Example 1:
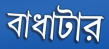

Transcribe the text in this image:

বাধাটার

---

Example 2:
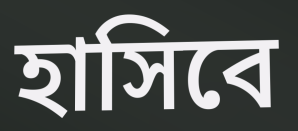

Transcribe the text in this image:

হাসিবে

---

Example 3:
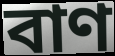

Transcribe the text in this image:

বাণ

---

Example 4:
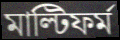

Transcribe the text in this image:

মাল্টিফর্ম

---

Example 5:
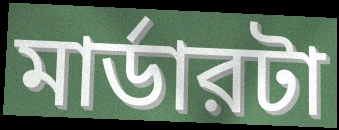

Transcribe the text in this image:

মার্ডারটা